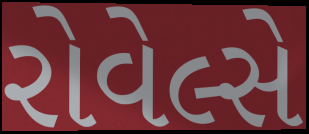
રોવેલ્સે